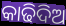
କାଢିଦିଅ